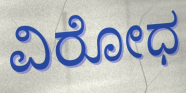
ವಿರೋಧ